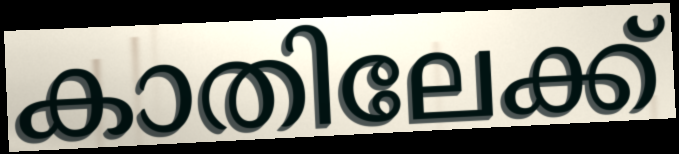
കാതിലേക്ക്